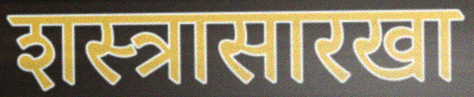
शस्त्रासारखा